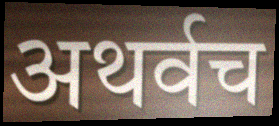
अथर्वच